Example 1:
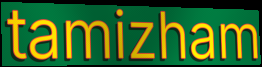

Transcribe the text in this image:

tamizham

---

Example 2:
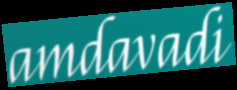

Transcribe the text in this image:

amdavadi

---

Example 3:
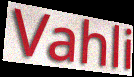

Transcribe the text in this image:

Vahli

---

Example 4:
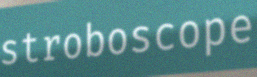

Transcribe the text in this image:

stroboscope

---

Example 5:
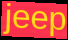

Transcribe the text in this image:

jeep